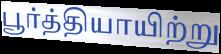
பூர்த்தியாயிற்று